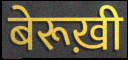
बेरूख़ी